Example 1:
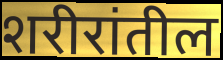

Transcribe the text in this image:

शरीरांतील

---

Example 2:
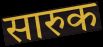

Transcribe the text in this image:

सारुक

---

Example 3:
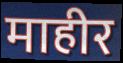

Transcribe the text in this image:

माहीर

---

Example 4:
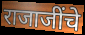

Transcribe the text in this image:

राजाजींचे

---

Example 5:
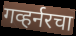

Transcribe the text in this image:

गव्हर्नरचा